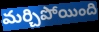
మర్చిపోయింది